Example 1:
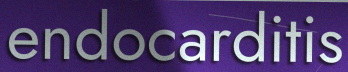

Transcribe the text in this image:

endocarditis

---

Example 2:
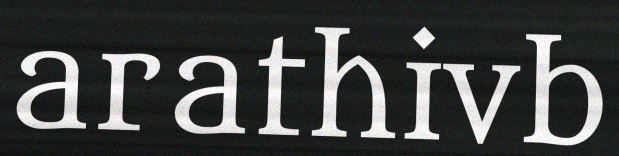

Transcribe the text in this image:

arathivb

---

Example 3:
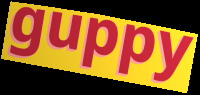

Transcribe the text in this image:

guppy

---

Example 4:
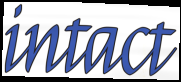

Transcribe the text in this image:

intact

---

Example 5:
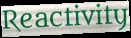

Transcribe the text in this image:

Reactivity